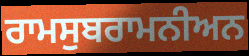
ਰਾਮਸੁਬਰਾਮਨੀਅਨ